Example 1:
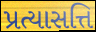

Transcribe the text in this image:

પ્રત્યાસત્તિ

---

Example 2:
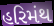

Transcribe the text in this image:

હરિમંથ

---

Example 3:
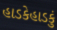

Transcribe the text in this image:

હાડકેહાડકું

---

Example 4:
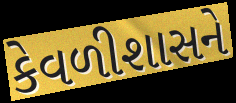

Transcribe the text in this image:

કેવળીશાસને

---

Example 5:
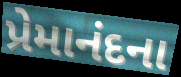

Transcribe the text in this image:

પ્રેમાનંદના